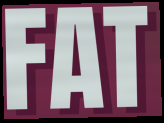
FAT